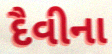
દૈવીના